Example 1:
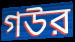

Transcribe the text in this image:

গউর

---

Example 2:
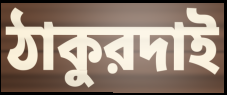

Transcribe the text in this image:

ঠাকুরদাই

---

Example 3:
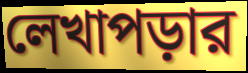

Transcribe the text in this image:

লেখাপড়ার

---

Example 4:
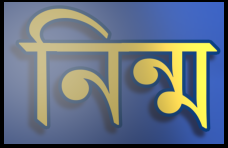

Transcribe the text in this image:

নিন্ম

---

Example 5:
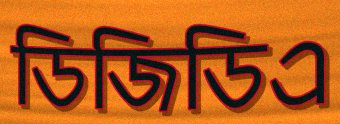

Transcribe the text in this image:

ডিজিডিএ